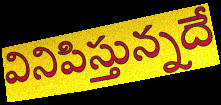
వినిపిస్తున్నదే